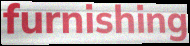
furnishing